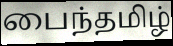
பைந்தமிழ்